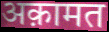
अक़ामत